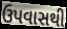
ઉપવાસથી